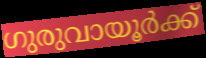
ഗുരുവായൂർക്ക്